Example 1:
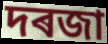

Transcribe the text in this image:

দৰজা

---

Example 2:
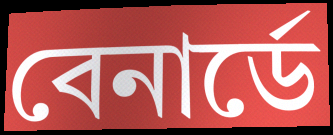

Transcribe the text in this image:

বেনাৰ্ডে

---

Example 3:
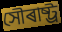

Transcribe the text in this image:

সৌৰাষ্ট্ৰ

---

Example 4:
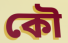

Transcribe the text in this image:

কৌ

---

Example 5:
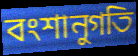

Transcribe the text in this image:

বংশানুগতি